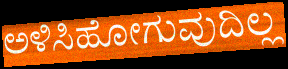
ಅಳಿಸಿಹೋಗುವುದಿಲ್ಲ